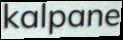
kalpane